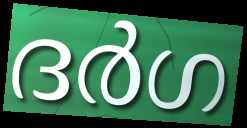
ദർഗ